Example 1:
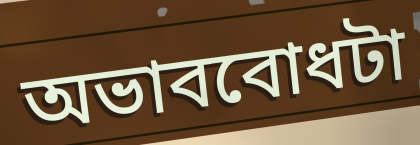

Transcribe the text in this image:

অভাববোধটা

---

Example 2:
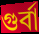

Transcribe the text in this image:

গুর্বা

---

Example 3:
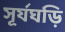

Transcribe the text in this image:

সূর্যঘড়ি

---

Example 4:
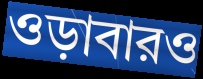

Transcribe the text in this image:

ওড়াবারও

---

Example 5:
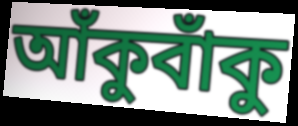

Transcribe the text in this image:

আঁকুবাঁকু